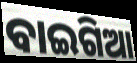
ବାଇଗିଆ